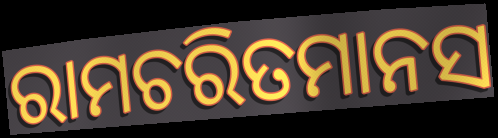
ରାମଚରିତମାନସ